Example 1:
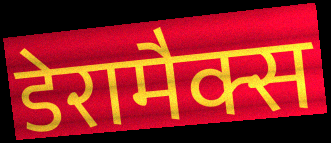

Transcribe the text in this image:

डेरामैक्स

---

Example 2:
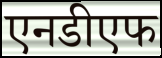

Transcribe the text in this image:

एनडीएफ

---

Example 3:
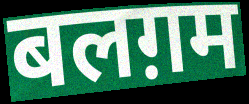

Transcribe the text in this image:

बलग़म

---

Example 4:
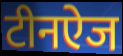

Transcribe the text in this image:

टीनऐज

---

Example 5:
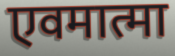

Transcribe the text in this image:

एवमात्मा